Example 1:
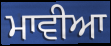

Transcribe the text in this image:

ਮਾਵੀਆ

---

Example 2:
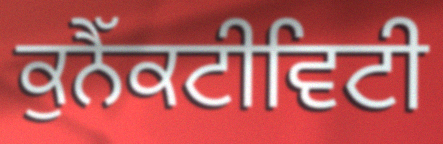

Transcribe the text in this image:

ਕੁਨੈੱਕਟੀਵਿਟੀ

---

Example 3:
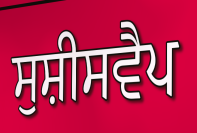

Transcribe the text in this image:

ਸੁਸ਼ੀਸਵੈਪ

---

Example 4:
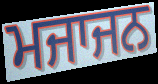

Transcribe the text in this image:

ਮਜਾਜਨ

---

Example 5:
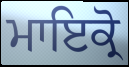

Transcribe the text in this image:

ਮਾਇਕ੍ਰੋ